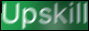
Upskill